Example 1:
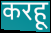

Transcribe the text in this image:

करहू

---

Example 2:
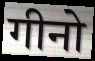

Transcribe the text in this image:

गीनो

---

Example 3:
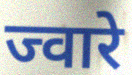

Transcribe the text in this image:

ज्वारे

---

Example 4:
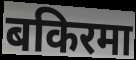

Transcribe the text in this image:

बकिरमा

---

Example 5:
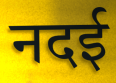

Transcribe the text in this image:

नदई